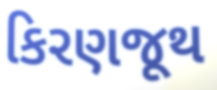
કિરણજૂથ